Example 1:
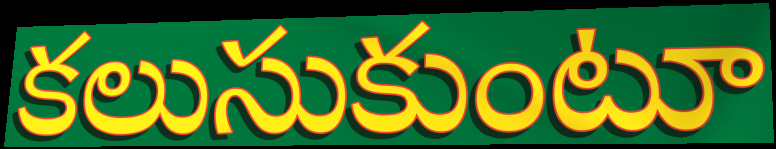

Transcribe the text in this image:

కలుసుకుంటూ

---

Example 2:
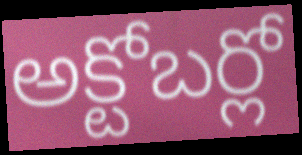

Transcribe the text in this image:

అక్టోబర్లో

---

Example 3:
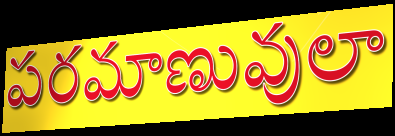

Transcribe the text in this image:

పరమాణువులా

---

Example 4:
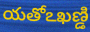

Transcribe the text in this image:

యతోఽఖణ్డి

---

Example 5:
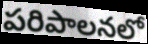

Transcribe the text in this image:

పరిపాలనలో